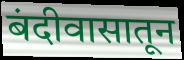
बंदीवासातून